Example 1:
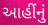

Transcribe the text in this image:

આહીંનું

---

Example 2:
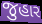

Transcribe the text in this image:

જુહાર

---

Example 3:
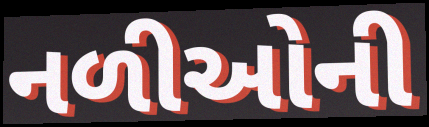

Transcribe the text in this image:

નળીઓની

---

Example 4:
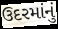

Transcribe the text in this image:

ઉદરમાંનું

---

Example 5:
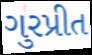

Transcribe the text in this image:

ગુરપ્રીત